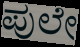
ಪುಲೇ